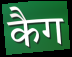
कैग